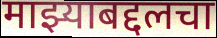
माझ्याबद्दलचा